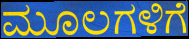
ಮೂಲಗಳಿಗೆ